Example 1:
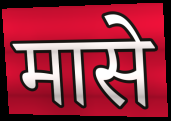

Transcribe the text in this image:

मासे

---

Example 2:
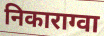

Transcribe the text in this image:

निकाराग्वा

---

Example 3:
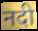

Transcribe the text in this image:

नदी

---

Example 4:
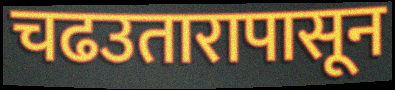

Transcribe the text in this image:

चढउतारापासून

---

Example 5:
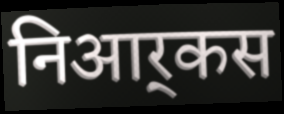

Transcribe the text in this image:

निआर्कस